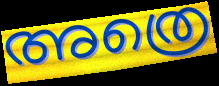
അത്രെ